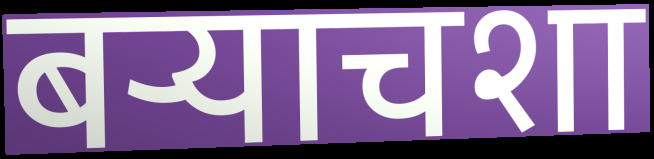
बऱ्याचशा